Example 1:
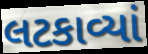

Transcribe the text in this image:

લટકાવ્યાં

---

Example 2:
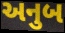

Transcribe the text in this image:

અનુબ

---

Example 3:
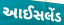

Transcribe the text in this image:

આઈસલેંડ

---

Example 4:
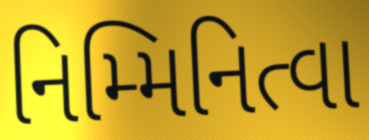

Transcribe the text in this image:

નિમ્મિનિત્વા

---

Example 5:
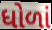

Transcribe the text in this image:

ધોળાં